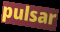
pulsar